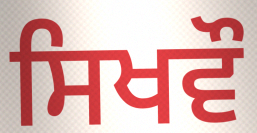
ਸਿਖਵੌ